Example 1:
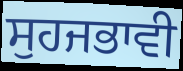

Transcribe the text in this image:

ਸੁਹਜਭਾਵੀ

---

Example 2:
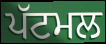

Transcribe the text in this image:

ਪੱਟਮਲ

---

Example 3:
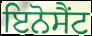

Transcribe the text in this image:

ਇਨੋਸੈਂਟ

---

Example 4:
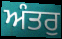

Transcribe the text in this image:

ਅੰਤਰੁ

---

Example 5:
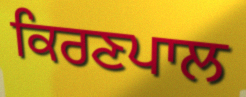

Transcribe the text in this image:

ਕਿਰਣਪਾਲ